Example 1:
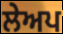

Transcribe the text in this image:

ਲੇਅਪ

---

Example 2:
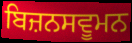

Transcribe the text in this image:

ਬਿਜ਼ਨਸਵੂਮਨ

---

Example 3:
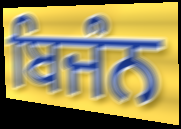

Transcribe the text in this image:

ਬਿਜੰਨ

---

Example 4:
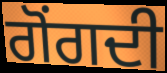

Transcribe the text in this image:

ਗੋਂਗਦੀ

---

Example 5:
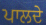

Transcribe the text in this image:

ਪਾਲਦੇ